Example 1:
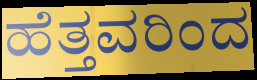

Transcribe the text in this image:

ಹೆತ್ತವರಿಂದ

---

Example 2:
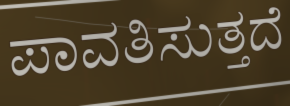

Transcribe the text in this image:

ಪಾವತಿಸುತ್ತದೆ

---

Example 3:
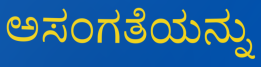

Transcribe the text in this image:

ಅಸಂಗತೆಯನ್ನು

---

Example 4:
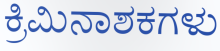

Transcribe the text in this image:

ಕ್ರಿಮಿನಾಶಕಗಳು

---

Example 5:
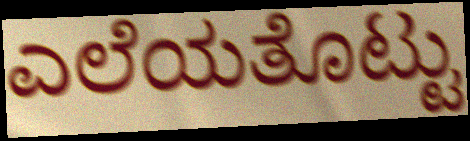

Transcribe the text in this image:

ಎಲೆಯತೊಟ್ಟು